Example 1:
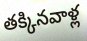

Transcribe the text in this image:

తక్కినవాళ్ల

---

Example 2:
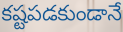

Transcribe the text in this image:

కష్టపడకుండానే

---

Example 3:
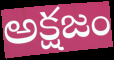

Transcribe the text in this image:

అక్షజం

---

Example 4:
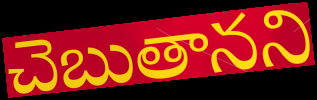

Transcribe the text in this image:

చెబుతానని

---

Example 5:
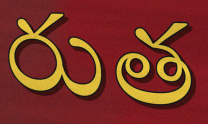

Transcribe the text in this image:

రుత